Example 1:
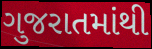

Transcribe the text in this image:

ગુજરાતમાંથી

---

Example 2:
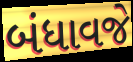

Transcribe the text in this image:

બંધાવજે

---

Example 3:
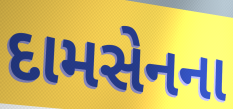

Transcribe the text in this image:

દામસેનના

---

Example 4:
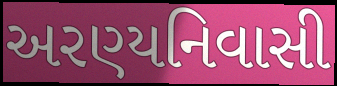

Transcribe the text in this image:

અરણ્યનિવાસી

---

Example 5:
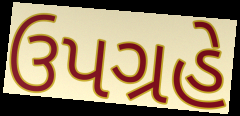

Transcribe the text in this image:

ઉપગ્રહે